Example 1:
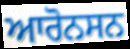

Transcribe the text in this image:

ਆਰੋਨਸਨ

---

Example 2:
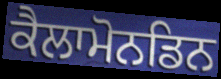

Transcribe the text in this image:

ਕੈਲਾਮੋਨਡਿਨ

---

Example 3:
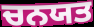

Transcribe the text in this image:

ਚਨਯਤ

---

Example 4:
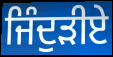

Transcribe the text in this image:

ਜਿੰਦੁੜੀਏ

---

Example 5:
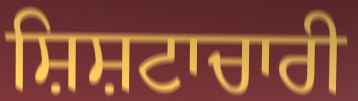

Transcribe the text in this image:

ਸ਼ਿਸ਼ਟਾਚਾਰੀ